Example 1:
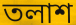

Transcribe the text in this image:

তলাশ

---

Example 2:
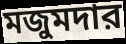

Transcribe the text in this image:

মজুমদার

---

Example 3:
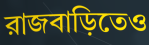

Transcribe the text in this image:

রাজবাড়িতেও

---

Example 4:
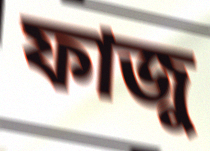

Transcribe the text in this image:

ফাজু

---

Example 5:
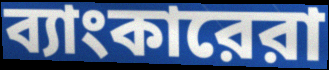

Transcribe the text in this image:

ব্যাংকারেরা